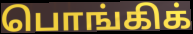
பொங்கிக்